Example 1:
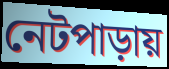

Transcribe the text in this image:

নেটপাড়ায়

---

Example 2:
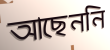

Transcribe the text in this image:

আছেননি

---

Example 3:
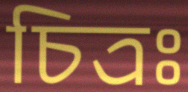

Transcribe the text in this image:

চিত্রঃ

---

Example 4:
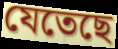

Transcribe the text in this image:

যেতেছে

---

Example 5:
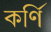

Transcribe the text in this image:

কর্ণি